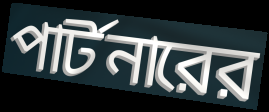
পার্টনারের